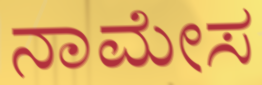
ನಾಮೇಸ